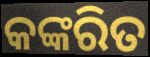
କଙ୍କରିତ